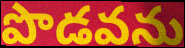
పొడవను